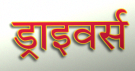
ड्राइवर्स